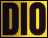
DIO